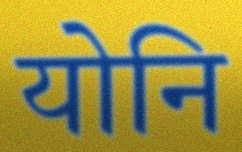
योनि